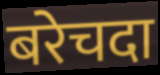
बरेचदा